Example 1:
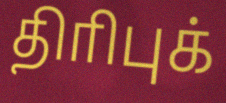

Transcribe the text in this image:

திரிபுக்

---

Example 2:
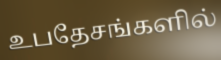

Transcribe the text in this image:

உபதேசங்களில்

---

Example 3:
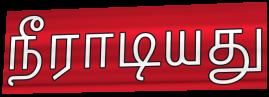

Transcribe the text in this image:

நீராடியது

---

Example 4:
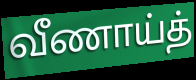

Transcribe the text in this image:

வீணாய்த்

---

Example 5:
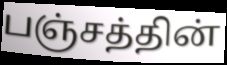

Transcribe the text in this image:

பஞ்சத்தின்